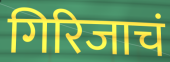
गिरिजाचं